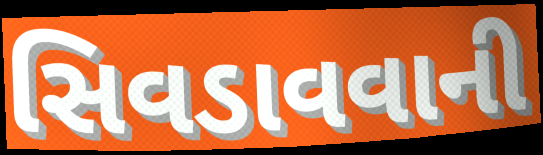
સિવડાવવાની